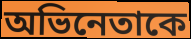
অভিনেতাকে